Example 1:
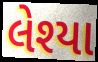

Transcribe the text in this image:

લેશ્યા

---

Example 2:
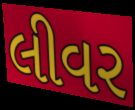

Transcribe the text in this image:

લીવર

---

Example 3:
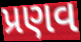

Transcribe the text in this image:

પ્રણવ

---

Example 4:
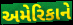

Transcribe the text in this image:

અમેરિકાને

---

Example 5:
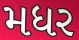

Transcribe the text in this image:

મધર